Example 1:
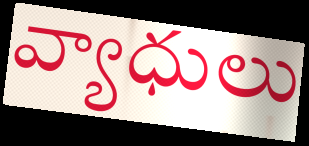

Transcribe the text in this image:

వ్యాధులు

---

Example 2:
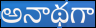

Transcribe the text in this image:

అనాథగా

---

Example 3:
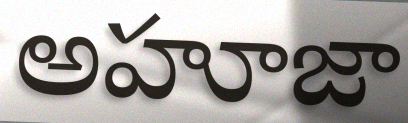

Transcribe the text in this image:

అహూజా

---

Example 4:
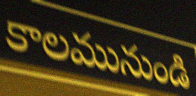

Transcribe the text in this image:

కాలమునుండి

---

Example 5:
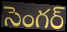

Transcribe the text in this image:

సెంగర్